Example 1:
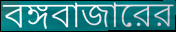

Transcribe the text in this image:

বঙ্গবাজারের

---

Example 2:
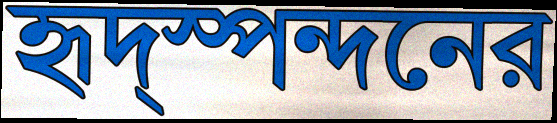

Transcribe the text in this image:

হৃদ্স্পন্দনের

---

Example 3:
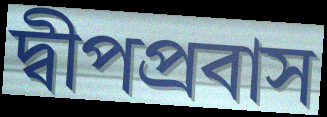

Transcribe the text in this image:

দ্বীপপ্রবাস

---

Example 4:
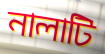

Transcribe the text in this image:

নালাটি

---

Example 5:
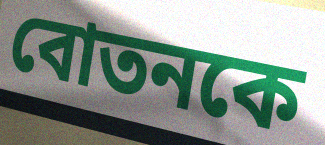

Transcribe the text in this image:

বোতনকে